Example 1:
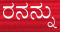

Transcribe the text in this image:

ರನನ್ನು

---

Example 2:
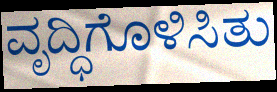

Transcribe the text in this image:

ವೃದ್ಧಿಗೊಳಿಸಿತು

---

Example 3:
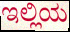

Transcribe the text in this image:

ಇಲ್ಲಿಯ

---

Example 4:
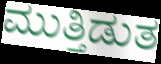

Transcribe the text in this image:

ಮುತ್ತಿಡುತ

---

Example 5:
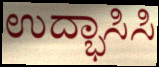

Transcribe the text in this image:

ಉದ್ಭಾಸಿಸಿ